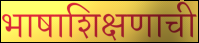
भाषाशिक्षणाची